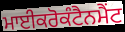
ਮਾਈਕਰੋਕੰਟੈਨਮੈਂਟ